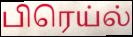
பிரெய்ல்